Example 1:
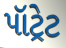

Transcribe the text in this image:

પૉટ્રેટ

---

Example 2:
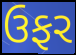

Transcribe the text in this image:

ઉફર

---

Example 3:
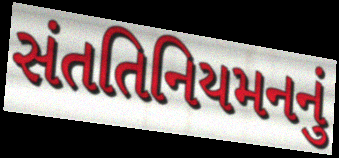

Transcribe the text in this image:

સંતતિનિયમનનું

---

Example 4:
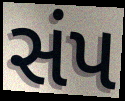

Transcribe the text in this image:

સંપ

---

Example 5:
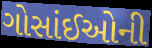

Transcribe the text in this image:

ગોસાંઈઓની